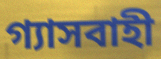
গ্যাসবাহী